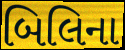
બિલિના